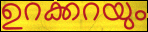
ഉറക്കറയും